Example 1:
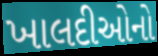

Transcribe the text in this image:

ખાલદીઓનો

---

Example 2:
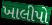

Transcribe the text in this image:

ખાલીપો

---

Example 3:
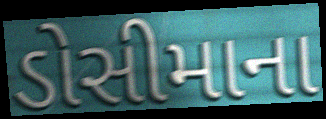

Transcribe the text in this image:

ડોસીમાના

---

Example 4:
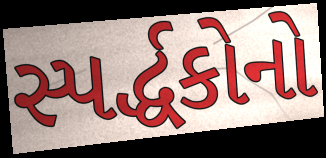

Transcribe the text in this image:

સ્પર્દ્ધકોનો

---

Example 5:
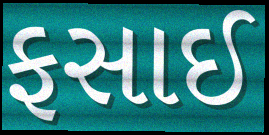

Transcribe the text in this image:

ફસાઈ